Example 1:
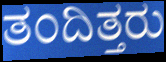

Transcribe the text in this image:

ತಂದಿತ್ತರು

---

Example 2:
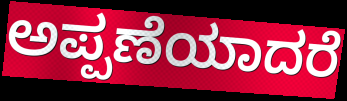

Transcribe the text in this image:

ಅಪ್ಪಣೆಯಾದರೆ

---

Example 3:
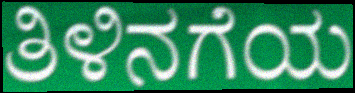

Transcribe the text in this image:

ತಿಳಿನಗೆಯ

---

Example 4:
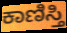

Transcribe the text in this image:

ಕಾಣಿಸ್ತಿ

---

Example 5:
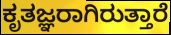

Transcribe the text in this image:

ಕೃತಜ್ಞರಾಗಿರುತ್ತಾರೆ